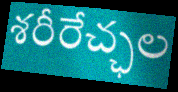
శరీరేచ్ఛల